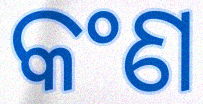
କଂଣ